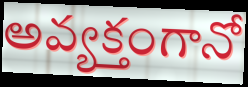
అవ్యక్తంగానో